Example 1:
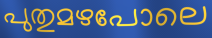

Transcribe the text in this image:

പുതുമഴപോലെ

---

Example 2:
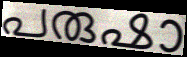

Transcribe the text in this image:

പരുഷാ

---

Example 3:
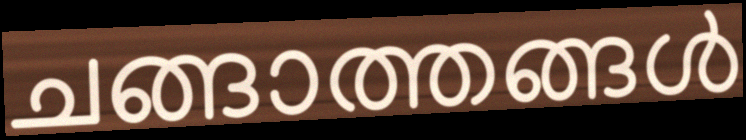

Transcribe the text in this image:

ചങ്ങാത്തങ്ങൾ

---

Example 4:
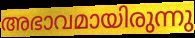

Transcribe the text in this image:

അഭാവമായിരുന്നു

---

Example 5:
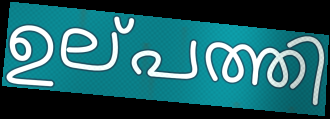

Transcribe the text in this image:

ഉല്‌പത്തി